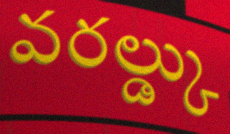
వరల్డ్కు